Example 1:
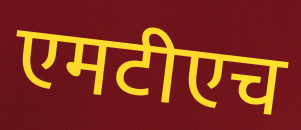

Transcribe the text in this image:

एमटीएच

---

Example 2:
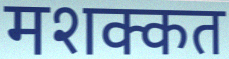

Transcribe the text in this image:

मशक्कत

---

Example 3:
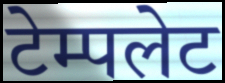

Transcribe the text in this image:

टेम्पलेट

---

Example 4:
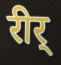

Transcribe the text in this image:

रीर्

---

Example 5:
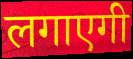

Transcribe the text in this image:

लगाएगी